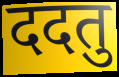
ददतु